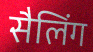
सैलिंग